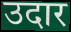
उदार